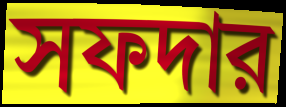
সফদার